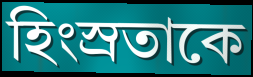
হিংস্রতাকে